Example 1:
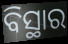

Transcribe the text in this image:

ବିସ୍ଥାର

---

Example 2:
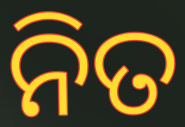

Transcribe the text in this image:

ନିତ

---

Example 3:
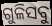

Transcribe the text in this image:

ଗୁଳିସବୁ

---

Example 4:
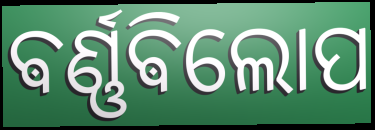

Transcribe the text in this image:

ଵର୍ଣ୍ଣଵିଲୋପ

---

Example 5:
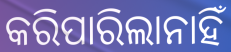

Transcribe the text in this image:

କରିପାରିଲାନାହିଁ